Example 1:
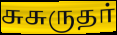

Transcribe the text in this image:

சுசுருதர்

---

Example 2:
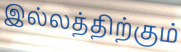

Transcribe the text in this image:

இல்லத்திற்கும்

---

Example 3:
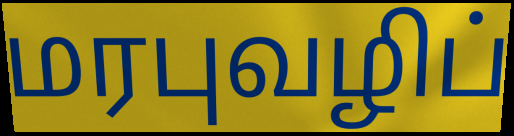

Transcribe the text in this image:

மரபுவழிப்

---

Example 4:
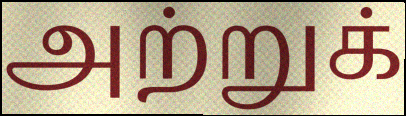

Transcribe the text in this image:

அற்றுக்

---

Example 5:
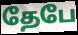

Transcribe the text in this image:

தேபே